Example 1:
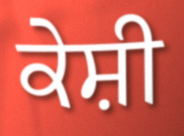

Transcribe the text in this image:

ਕੇਸ਼ੀ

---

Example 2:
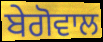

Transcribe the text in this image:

ਬੇਗੋਵਾਲ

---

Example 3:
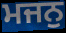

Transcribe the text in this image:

ਮਜਨੁ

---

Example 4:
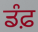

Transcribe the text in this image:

ਡੰਫ਼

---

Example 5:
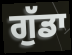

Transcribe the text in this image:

ਗੁੱਡਾ